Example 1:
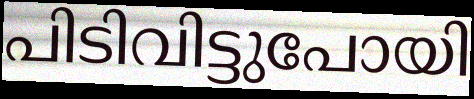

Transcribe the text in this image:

പിടിവിട്ടുപോയി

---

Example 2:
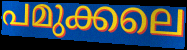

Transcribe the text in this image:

പമുക്കലെ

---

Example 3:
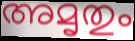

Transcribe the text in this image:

അമൃതും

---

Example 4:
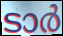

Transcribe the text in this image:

ടാർ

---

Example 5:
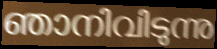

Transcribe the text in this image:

ഞാനിവിടുന്നു